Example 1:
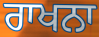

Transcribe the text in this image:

ਰਾਖਨਾ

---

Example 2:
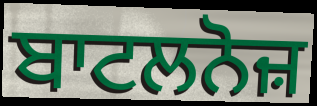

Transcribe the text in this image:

ਬਾਟਲਨੋਜ਼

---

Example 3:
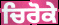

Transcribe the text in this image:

ਚਿਰੋਕੇ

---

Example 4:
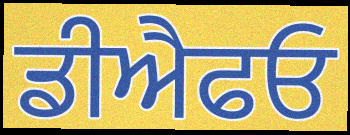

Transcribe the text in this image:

ਡੀਐਫਓ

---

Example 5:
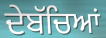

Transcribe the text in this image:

ਦੇਬੱਚਿਆਂ